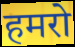
हमरो